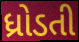
ધ્રોડતી